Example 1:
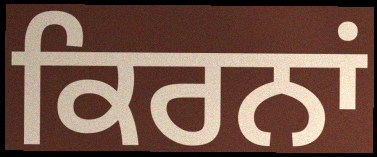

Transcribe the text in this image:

ਕਿਰਨਾਂ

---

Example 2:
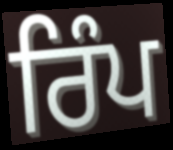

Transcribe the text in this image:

ਰਿੰਪ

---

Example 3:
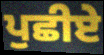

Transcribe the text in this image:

ਪੁਛੀਏ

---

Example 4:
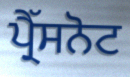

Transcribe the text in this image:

ਪ੍ਰੈੱਸਨੋਟ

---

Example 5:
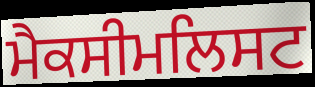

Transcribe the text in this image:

ਮੈਕਸੀਮਲਿਸਟ